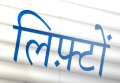
लिफ़्टों